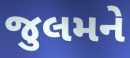
જુલમને